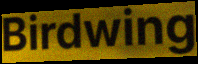
Birdwing